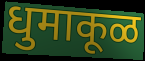
धुमाकूळ